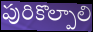
పురికొల్పాలి